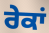
ਰੇਕਾਂ